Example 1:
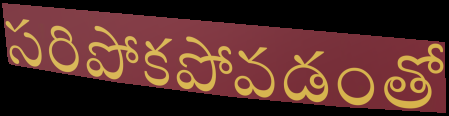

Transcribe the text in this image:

సరిపోకపోవడంతో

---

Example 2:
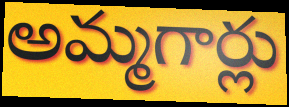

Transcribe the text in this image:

అమ్మగార్లు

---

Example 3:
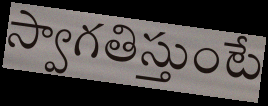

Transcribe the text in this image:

స్వాగతిస్తుంటే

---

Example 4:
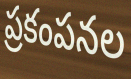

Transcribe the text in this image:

ప్రకంపనల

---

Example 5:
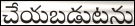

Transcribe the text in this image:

చేయబడుటను